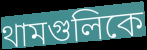
থামগুলিকে